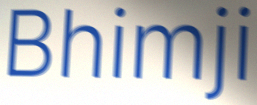
Bhimji